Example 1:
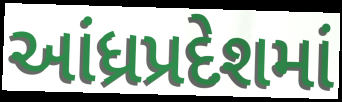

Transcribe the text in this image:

આંધ્રપ્રદેશમાં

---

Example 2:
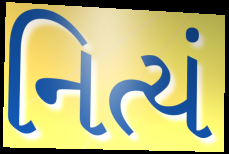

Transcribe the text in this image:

નિત્યં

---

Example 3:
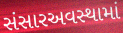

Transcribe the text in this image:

સંસારઅવસ્થામાં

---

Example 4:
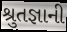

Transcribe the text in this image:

શ્રુતજ્ઞાની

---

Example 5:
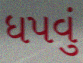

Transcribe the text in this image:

ધપવું